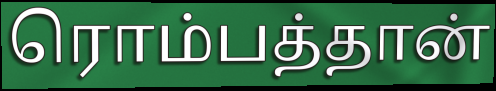
ரொம்பத்தான்